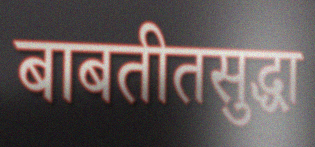
बाबतीतसुद्धा